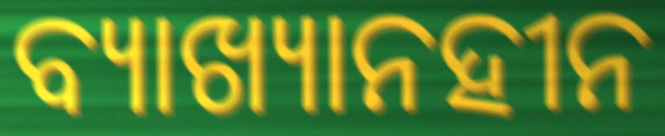
ବ୍ୟାଖ୍ୟାନହୀନ